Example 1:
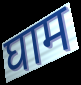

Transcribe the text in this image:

घाम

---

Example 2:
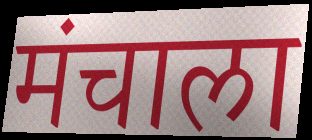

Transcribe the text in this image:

मंचाला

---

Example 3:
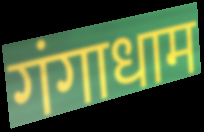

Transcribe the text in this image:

गंगाधाम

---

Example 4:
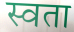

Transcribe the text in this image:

स्वता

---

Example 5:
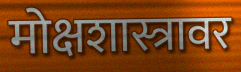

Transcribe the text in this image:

मोक्षशास्त्रावर